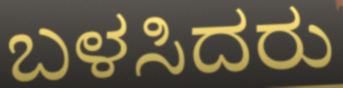
ಬಳಸಿದರು